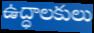
ఉద్ధాలకులు